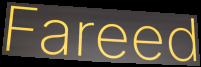
Fareed